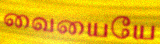
வையையே